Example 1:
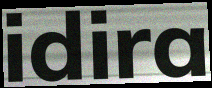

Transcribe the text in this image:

idira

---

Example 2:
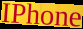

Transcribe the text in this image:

IPhone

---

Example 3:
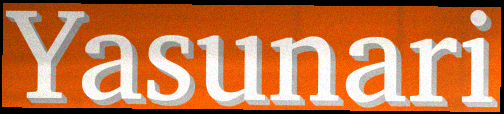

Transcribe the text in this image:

Yasunari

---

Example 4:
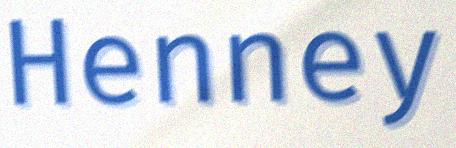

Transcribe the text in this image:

Henney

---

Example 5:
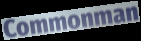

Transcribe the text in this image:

Commonman